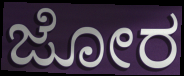
ಜೋರ